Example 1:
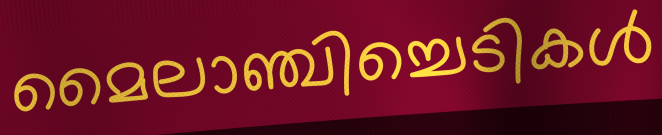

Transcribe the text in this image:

മൈലാഞ്ചിച്ചെടികൾ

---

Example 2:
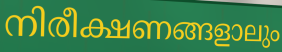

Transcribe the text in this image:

നിരീക്ഷണങ്ങളാലും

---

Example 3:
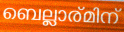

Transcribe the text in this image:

ബെല്ലാര്മിന്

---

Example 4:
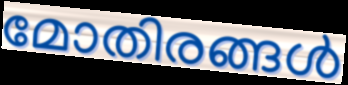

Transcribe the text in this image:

മോതിരങ്ങൾ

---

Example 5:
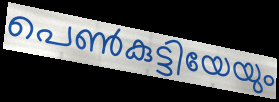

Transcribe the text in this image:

പെൺകുട്ടിയേയും